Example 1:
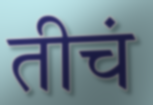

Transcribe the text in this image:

तीचं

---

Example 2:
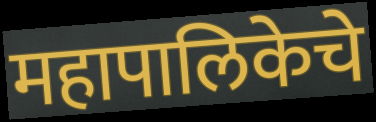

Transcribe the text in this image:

महापालिकेचे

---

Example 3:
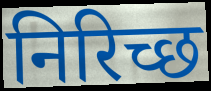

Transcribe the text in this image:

निरिच्छ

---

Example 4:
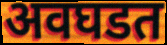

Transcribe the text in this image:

अवघडत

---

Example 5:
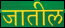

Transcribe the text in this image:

जातील